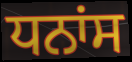
ਧਨਾਂਸ